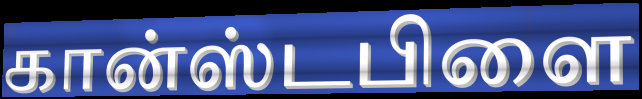
கான்ஸ்டபிளை